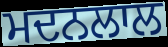
ਮਦਨਲਾਲ